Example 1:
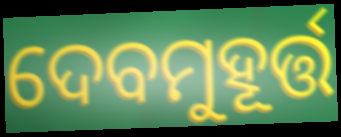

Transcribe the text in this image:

ଦେବମୁହୂର୍ତ୍ତ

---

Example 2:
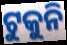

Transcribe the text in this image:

ଟୁକୁନି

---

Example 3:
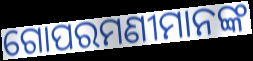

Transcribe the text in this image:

ଗୋପରମଣୀମାନଙ୍କ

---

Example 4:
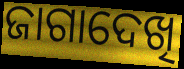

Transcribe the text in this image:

ଜାଗାଦେଖି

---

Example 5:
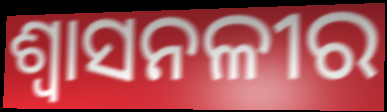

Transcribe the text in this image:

ଶ୍ୱାସନଳୀର